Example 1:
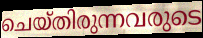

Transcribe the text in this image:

ചെയ്തിരുന്നവരുടെ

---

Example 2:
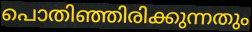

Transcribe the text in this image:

പൊതിഞ്ഞിരിക്കുന്നതും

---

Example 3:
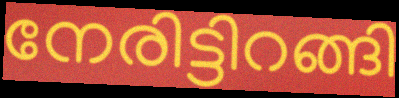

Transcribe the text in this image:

നേരിട്ടിറങ്ങി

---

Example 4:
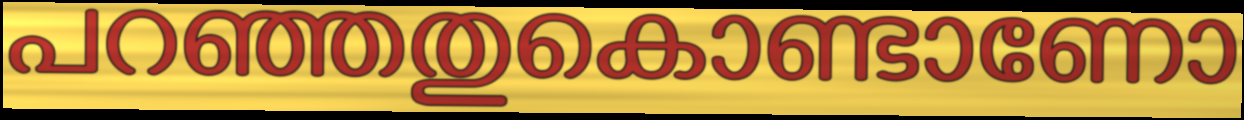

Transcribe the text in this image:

പറഞ്ഞതുകൊണ്ടാണോ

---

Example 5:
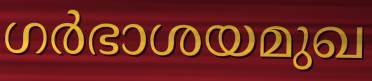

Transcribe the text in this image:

ഗർഭാശയമുഖ